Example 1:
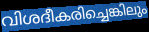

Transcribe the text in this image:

വിശദീകരിച്ചെങ്കിലും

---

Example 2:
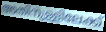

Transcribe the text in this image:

അതിനുള്ളിലേക്ക്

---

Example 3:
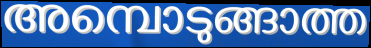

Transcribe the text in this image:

അമ്പൊടുങ്ങാത്ത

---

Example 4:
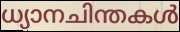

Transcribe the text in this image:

ധ്യാനചിന്തകൾ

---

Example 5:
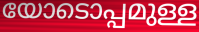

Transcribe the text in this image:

യോടൊപ്പമുള്ള